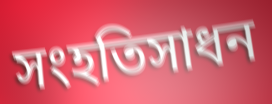
সংহতিসাধন